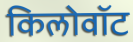
किलोवॉट